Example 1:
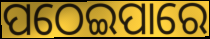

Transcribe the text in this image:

ପଠେଇପାରେ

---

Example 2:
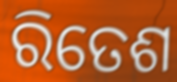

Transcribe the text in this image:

ରିତେଶ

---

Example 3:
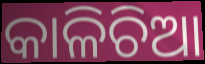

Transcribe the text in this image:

କାଳିଚିଆ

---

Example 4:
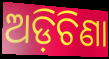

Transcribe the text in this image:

ଅଡ଼ିଚିଣା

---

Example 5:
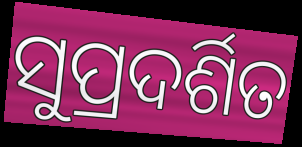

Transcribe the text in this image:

ସୁପ୍ରଦର୍ଶିତ